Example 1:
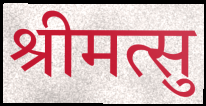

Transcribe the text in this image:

श्रीमत्सु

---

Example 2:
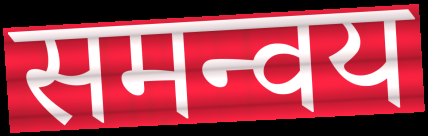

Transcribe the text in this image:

समन्वय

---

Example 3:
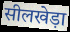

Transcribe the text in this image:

सीलखेड़ा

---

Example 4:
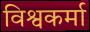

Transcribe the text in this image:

विश्वकर्मा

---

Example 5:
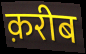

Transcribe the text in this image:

क़रीब